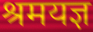
श्रमयज्ञ